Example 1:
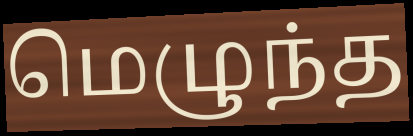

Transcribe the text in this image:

மெழுந்த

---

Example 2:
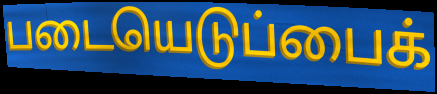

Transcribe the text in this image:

படையெடுப்பைக்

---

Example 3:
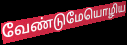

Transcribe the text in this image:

வேண்டுமேயொழிய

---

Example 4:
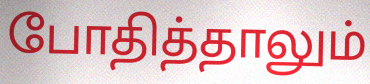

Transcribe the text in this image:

போதித்தாலும்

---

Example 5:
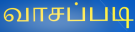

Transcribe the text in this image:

வாசப்படி